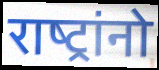
राष्ट्रांनो